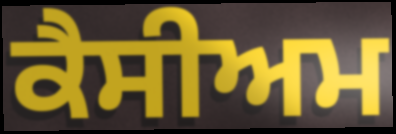
ਕੈਸੀਅਮ